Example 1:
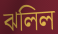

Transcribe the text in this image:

ঝলিল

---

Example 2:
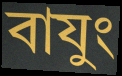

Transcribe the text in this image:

বাযুং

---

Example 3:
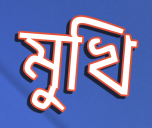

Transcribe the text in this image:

মুখি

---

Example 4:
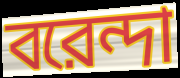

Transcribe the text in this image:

বরেন্দা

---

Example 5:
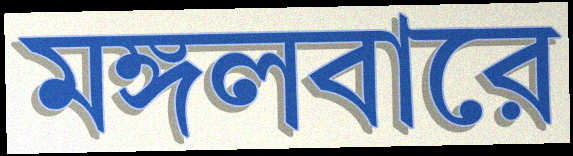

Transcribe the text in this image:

মঙ্গলবারে